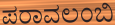
ಪರಾವಲಂಬಿ